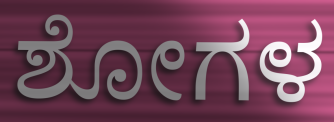
ಶೋಗಳ